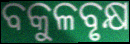
ବକୁଳବୃକ୍ଷ